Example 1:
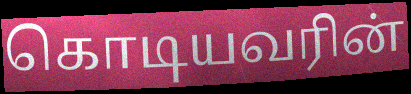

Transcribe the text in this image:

கொடியவரின்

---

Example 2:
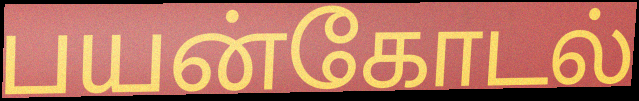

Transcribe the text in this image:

பயன்கோடல்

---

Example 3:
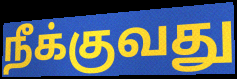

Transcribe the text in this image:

நீக்குவது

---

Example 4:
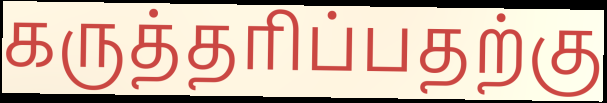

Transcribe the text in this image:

கருத்தரிப்பதற்கு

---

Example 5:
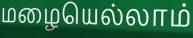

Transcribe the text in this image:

மழையெல்லாம்